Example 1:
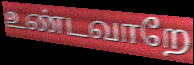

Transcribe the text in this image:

உண்டவாறே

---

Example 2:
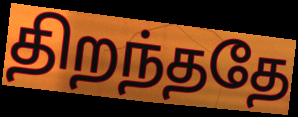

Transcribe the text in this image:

திறந்ததே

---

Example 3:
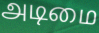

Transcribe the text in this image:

அடிமை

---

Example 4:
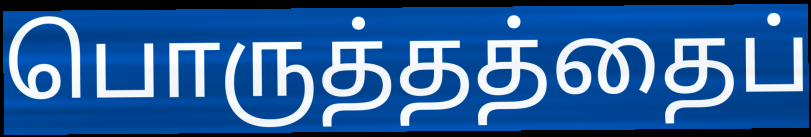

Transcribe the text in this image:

பொருத்தத்தைப்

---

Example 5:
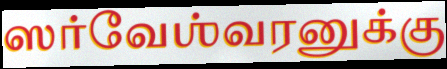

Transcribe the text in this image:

ஸர்வேஶ்வரனுக்கு